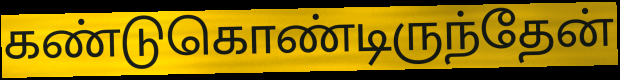
கண்டுகொண்டிருந்தேன்